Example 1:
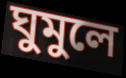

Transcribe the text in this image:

ঘুমুলে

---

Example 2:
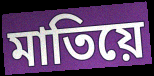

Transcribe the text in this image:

মাতিয়ে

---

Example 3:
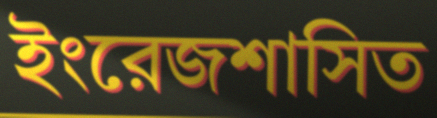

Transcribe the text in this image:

ইংরেজশাসিত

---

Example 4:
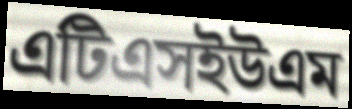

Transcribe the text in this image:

এটিএসইউএম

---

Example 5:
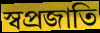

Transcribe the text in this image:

স্বপ্রজাতি